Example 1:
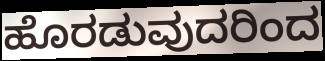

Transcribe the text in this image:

ಹೊರಡುವುದರಿಂದ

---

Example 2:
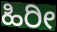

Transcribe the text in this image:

ಹಿರೀ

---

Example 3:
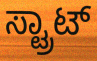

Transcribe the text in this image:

ಸ್ಟ್ರಾಟ್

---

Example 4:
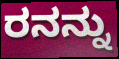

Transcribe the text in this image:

ರನನ್ನು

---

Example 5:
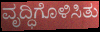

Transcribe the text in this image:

ವೃದ್ಧಿಗೊಳಿಸಿತು